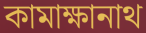
কামাক্ষানাথ